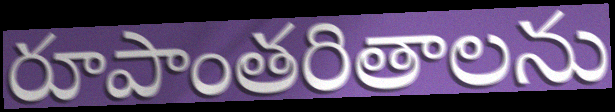
రూపాంతరితాలను